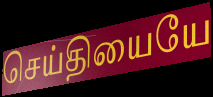
செய்தியையே